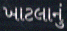
ખાટલાનું